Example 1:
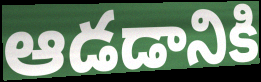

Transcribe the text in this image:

ఆడడానికి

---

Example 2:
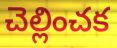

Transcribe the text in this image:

చెల్లించక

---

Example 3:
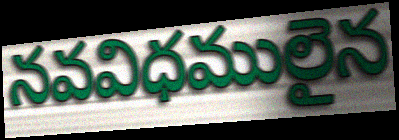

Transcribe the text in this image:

నవవిధములైన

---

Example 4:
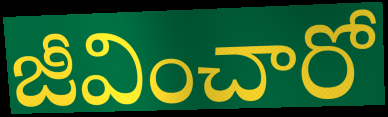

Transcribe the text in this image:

జీవించారో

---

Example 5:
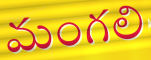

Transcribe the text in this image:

మంగలి